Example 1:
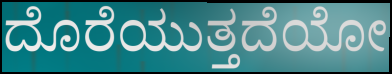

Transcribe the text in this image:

ದೊರೆಯುತ್ತದೆಯೋ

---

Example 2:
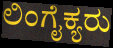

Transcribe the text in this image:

ಲಿಂಗೈಕ್ಯರು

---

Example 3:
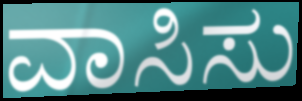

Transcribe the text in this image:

ವಾಸಿಸು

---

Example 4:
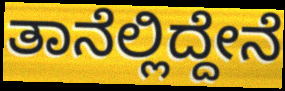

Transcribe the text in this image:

ತಾನೆಲ್ಲಿದ್ದೇನೆ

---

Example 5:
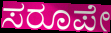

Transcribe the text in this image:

ಸರೂಪೇ